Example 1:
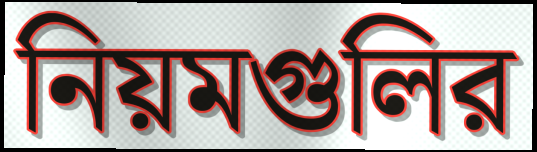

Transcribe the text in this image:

নিয়মগুলির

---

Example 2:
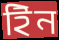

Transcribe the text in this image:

ইিন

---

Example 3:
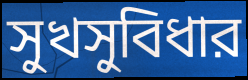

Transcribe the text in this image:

সুখসুবিধার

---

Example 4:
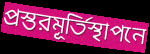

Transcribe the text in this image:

প্রস্তরমূর্তিস্থাপনে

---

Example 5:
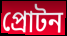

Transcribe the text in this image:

প্রোটন